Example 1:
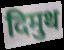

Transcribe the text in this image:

दिमुथ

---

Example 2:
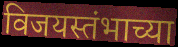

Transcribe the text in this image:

विजयस्तंभाच्या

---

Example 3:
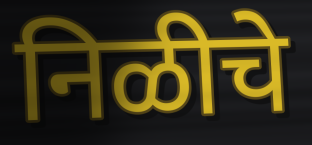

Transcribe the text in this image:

निळीचे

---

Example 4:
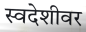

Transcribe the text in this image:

स्वदेशीवर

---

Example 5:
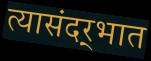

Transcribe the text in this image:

त्यासंदर्भात